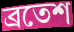
ব্রতেশ